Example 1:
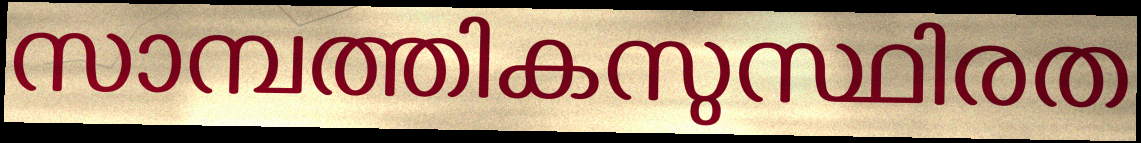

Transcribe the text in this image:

സാമ്പത്തികസുസ്ഥിരത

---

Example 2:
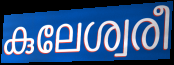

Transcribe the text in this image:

കുലേശ്വരീ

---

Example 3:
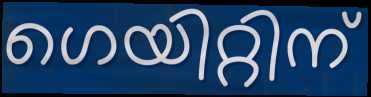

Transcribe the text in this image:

ഗെയിറ്റിന്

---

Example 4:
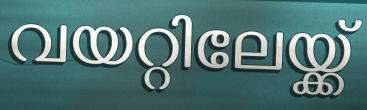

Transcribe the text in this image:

വയറ്റിലേയ്ക്ക്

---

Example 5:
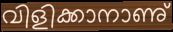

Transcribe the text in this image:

വിളിക്കാനാണു്